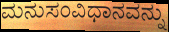
ಮನುಸಂವಿಧಾನವನ್ನು